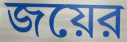
জয়ের